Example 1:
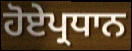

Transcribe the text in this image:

ਹੋਏਪ੍ਰਧਾਨ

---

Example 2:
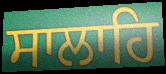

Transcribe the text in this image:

ਸਾਲਾਹਿ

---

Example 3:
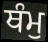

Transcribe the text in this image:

ਥੰਮੁ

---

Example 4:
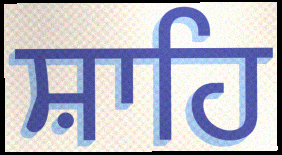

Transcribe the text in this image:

ਸ਼ਾਹਿ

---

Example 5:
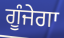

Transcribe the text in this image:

ਗੂੰਜੇਗਾ